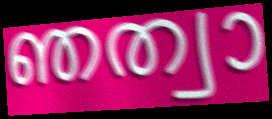
ഞത്വാ